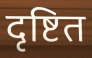
दृष्टित